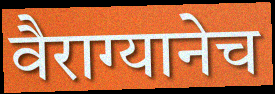
वैराग्यानेच